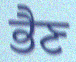
ਭੈਣ